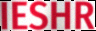
IESHR